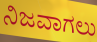
ನಿಜವಾಗಲು